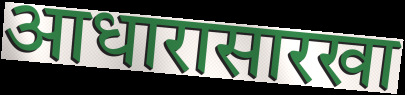
आधारासारखा